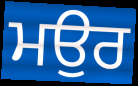
ਮਉਰ